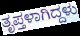
ತೃಪ್ತಳಾಗಿದ್ದಳು